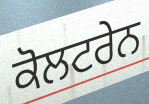
ਕੋਲਟਰੇਨ